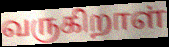
வருகிறாள்